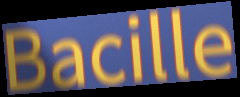
Bacille